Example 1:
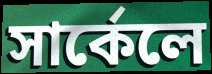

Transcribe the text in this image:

সার্কেলে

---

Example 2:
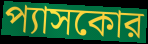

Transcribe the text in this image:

প্যাসকোর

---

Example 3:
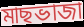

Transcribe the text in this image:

মাছভাজা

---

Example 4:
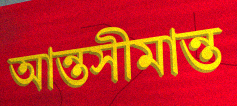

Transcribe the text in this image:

আন্তসীমান্ত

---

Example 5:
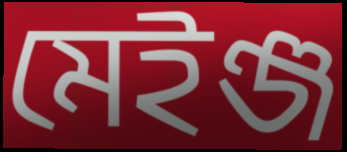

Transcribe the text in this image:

মেইঞ্জ